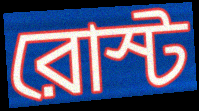
রোস্ট